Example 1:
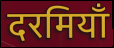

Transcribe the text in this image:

दरमियाँ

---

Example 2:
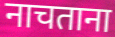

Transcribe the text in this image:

नाचताना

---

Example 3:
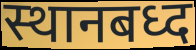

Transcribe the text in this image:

स्थानबध्द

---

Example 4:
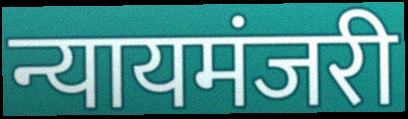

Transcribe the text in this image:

न्यायमंजरी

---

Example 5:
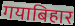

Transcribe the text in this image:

गयाबिहार